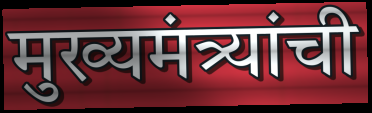
मुख्यमंत्र्यांची